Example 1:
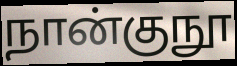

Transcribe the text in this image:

நான்குநூ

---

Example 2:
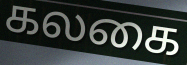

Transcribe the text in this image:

கலகை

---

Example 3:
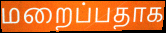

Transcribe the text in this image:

மறைப்பதாக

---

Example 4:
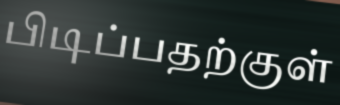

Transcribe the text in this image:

பிடிப்பதற்குள்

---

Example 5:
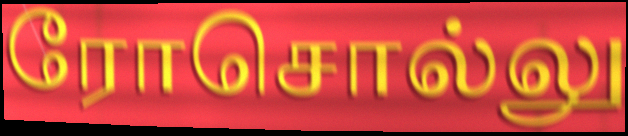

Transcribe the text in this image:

ரோசொல்லு